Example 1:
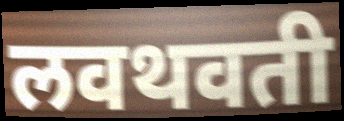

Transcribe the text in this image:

लवथवती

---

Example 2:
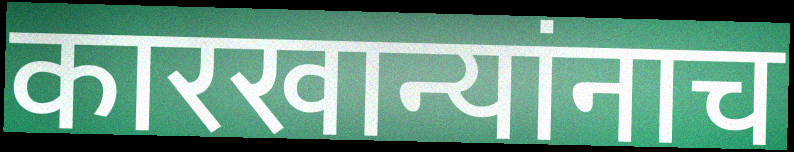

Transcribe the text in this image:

कारखान्यांनाच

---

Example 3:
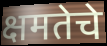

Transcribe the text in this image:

क्षमतेचे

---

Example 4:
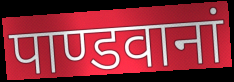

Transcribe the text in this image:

पाण्डवानां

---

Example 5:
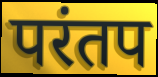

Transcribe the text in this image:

परंतप